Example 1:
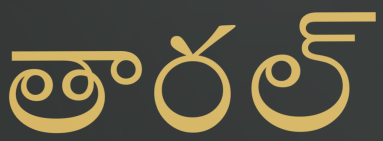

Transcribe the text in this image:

తారల్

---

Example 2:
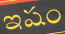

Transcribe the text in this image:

ఇషం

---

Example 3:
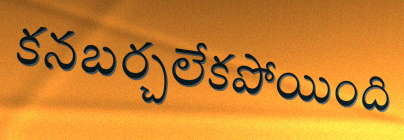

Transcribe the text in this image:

కనబర్చలేకపోయింది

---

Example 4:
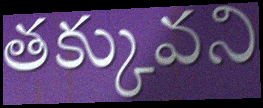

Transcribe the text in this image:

తక్కువని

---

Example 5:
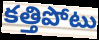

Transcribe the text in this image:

కత్తిపోటు